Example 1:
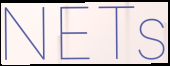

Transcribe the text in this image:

NETs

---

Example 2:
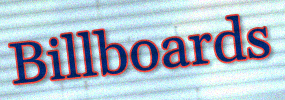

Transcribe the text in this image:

Billboards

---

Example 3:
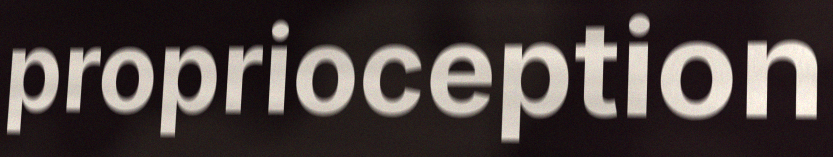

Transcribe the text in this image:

proprioception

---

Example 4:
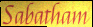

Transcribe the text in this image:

Sabatham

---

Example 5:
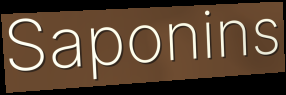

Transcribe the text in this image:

Saponins